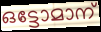
ഒട്ടോമാന്